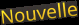
Nouvelle